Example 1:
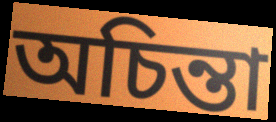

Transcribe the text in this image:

অচিন্তা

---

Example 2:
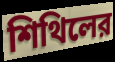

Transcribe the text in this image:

শিথিলের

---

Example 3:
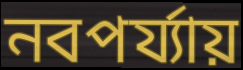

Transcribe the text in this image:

নবপর্য্যায়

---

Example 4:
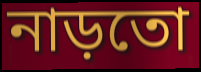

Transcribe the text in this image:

নাড়তো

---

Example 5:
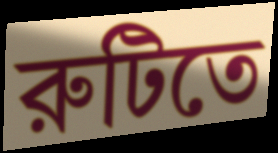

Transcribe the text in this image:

রুটিতে